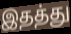
இதத்து